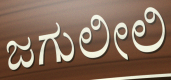
ಜಗುಲೀಲಿ